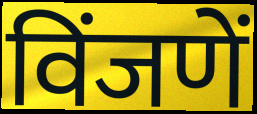
विंजणें